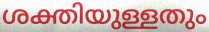
ശക്തിയുള്ളതും